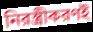
নিরস্ত্রীকরণই